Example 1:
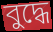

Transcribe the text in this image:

বুদ্ধে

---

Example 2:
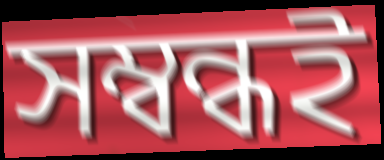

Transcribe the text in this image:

সম্বন্ধই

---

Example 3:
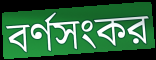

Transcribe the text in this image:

বর্ণসংকর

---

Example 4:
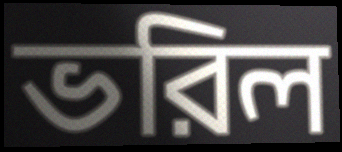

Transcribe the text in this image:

ভরিল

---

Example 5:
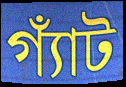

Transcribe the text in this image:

গ্যাঁট